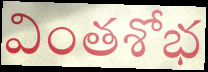
వింతశోభ